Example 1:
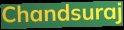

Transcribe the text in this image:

Chandsuraj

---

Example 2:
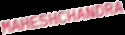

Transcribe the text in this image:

MAHESHCHANDRA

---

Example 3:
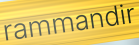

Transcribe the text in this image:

rammandir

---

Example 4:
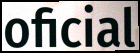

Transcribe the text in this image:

oficial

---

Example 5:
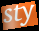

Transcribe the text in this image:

sty